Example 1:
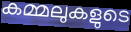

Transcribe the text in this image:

കമ്മലുകളുടെ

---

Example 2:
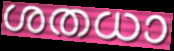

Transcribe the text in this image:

ശതധാ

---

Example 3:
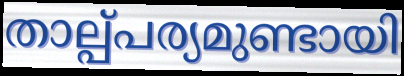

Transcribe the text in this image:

താല്പ്പര്യമുണ്ടായി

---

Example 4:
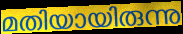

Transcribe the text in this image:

മതിയായിരുന്നു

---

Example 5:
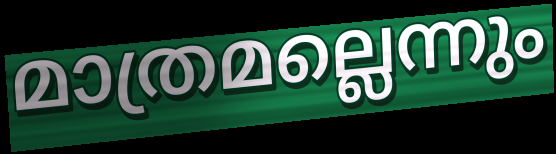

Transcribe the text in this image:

മാത്രമല്ലെന്നും